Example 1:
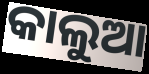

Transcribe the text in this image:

କାଲୁଆ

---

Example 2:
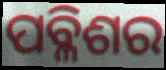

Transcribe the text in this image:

ପବ୍ଳିଶର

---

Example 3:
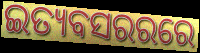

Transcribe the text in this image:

ଇତ୍ୟବସରରରେ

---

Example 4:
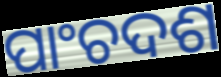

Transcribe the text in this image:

ପାଂଚଦଶ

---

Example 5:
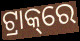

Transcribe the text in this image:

ଟ୍ରାକ୍‌ରେ